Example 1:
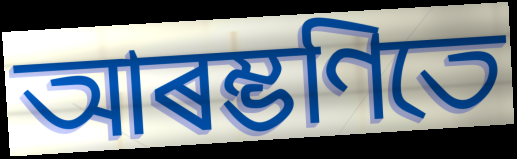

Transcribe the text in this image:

আৰম্ভণিতে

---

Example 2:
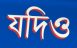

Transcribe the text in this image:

যদিও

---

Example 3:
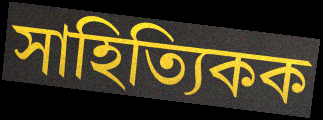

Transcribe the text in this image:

সাহিত্যিকক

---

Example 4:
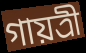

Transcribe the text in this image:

গায়ত্ৰী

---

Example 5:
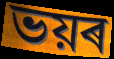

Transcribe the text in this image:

ভয়ৰ